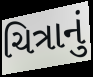
ચિત્રાનું